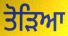
ਤੋਡ਼ਿਆ